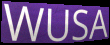
WUSA